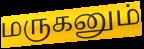
மருகனும்